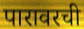
पारावरची